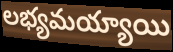
లభ్యమయ్యాయి